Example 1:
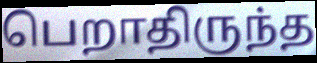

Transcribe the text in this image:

பெறாதிருந்த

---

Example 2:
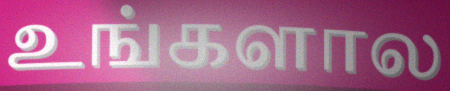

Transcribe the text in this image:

உங்களால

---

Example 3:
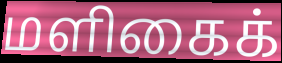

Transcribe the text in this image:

மளிகைக்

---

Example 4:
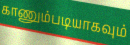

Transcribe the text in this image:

காணும்படியாகவும்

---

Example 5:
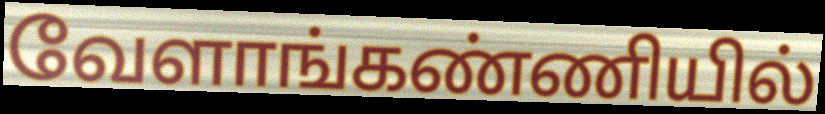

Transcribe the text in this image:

வேளாங்கண்ணியில்